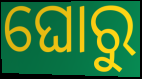
ଘୋରୁ